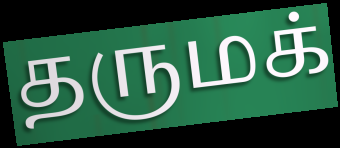
தருமக்